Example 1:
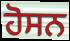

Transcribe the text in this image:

ਹੋਸਨ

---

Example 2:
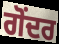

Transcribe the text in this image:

ਗੋਂਦਰ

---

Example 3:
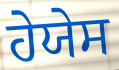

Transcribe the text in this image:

ਹੇਯੇਸ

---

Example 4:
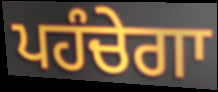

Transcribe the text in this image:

ਪਹੰਚੇਗਾ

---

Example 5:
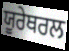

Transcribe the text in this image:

ਯੂਰੇਥਰਲ